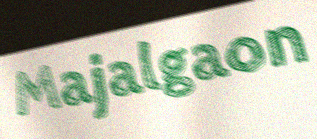
Majalgaon